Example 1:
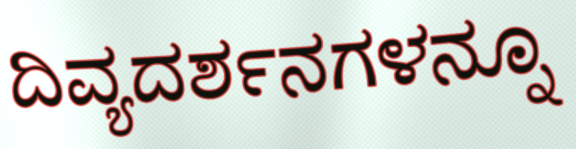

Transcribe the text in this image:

ದಿವ್ಯದರ್ಶನಗಳನ್ನೂ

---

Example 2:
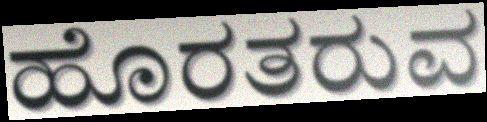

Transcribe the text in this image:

ಹೊರತರುವ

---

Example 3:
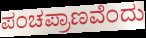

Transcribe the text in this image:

ಪಂಚಪ್ರಾಣವೆಂದು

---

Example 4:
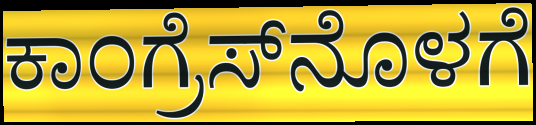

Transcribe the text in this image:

ಕಾಂಗ್ರೆಸ್‌ನೊಳಗೆ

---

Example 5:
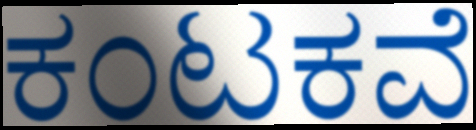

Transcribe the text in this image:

ಕಂಟಕವೆ